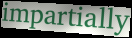
impartially